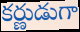
కర్ణుడుగా